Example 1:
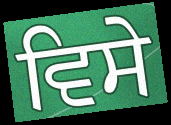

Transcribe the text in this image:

ਵਿਸੇ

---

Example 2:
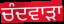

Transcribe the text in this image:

ਚੰਦਵਾੜਾ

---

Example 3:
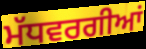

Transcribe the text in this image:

ਮੱਧਵਰਗੀਆਂ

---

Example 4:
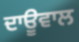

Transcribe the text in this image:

ਦਾਊਵਾਲ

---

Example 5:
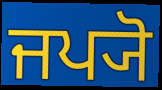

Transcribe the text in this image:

ਜਪ੍ਯੋ